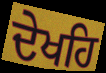
ਦੇਖਹਿ